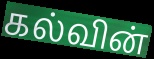
கல்வின்